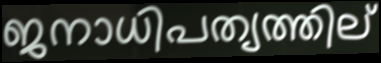
ജനാധിപത്യത്തില്